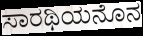
ಸಾರಥಿಯನೊನ